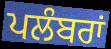
ਪਲੰਬਰਾਂ